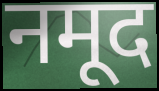
नमूद